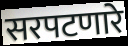
सरपटणारे